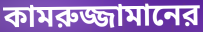
কামরুজ্জামানের